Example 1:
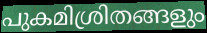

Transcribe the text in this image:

പുകമിശ്രിതങ്ങളും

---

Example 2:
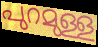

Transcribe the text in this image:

പുറമുള്ള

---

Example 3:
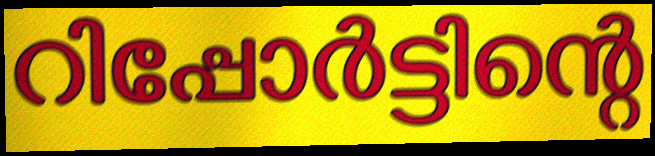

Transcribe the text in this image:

റിപ്പോർട്ടിന്റെ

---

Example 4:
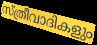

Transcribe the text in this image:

സ്ത്രീവാദികളും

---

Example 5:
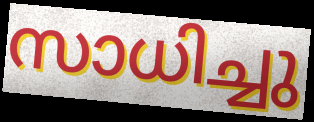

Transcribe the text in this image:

സാധിച്ചു